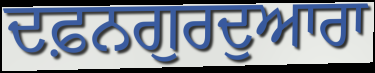
ਦਫ਼ਨਗੁਰਦੁਆਰਾ